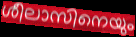
ശീലാസിനെയും